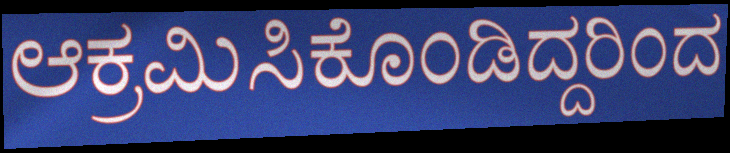
ಆಕ್ರಮಿಸಿಕೊಂಡಿದ್ದರಿಂದ